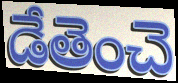
డేతెంచె